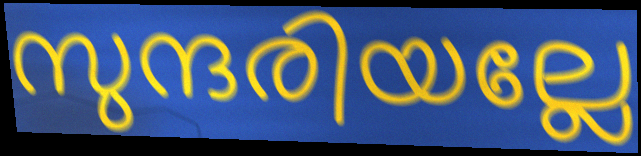
സുന്ദരിയല്ലേ